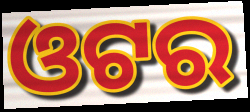
ଓଟର